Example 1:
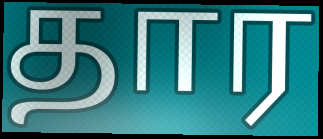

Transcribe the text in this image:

தார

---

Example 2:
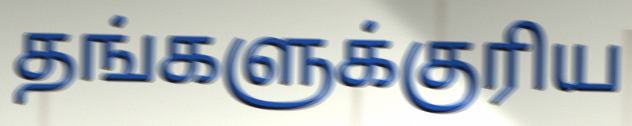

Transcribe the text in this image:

தங்களுக்குரிய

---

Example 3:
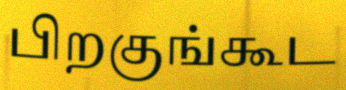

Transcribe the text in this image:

பிறகுங்கூட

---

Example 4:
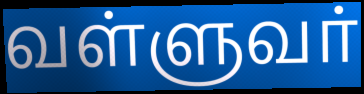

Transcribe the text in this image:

வள்ளுவர்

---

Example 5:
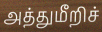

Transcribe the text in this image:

அத்துமீறிச்